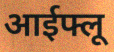
आईफ्लू